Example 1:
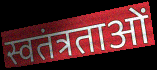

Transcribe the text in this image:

स्वतंत्रताओं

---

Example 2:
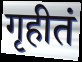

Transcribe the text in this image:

गृहीतं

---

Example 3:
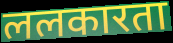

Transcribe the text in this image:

ललकारता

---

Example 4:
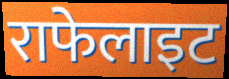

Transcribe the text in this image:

राफेलाइट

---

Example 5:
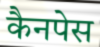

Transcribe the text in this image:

कैनपेस